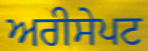
ਅਰੀਸੇਪਟ